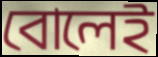
বোলেই